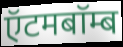
ऍटमबॉम्ब